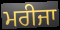
ਮਰੀਜਾ